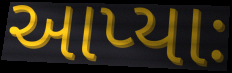
આપ્યાઃ